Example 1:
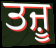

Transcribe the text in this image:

ਤਜ਼ੂ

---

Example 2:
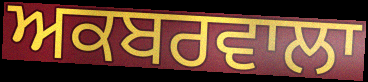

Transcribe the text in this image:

ਅਕਬਰਵਾਲਾ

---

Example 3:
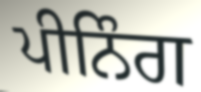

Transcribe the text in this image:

ਪੀਨਿੰਗ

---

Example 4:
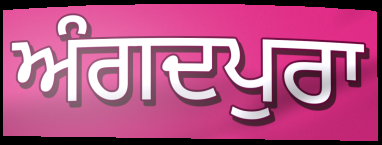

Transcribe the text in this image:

ਅੰਗਦਪੁਰਾ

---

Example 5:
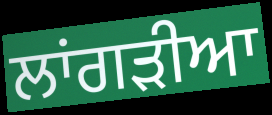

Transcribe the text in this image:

ਲਾਂਗੜੀਆ